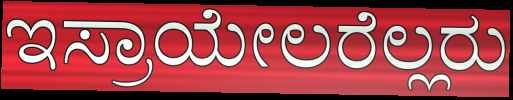
ಇಸ್ರಾಯೇಲರೆಲ್ಲರು